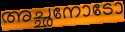
അച്ഛനോടോ